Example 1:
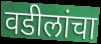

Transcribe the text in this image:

वडीलांचा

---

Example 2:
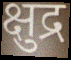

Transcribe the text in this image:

क्षुद्र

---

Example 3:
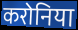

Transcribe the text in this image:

करोनिया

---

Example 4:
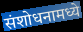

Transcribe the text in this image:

संशोधनामध्ये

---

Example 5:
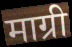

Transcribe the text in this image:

माग्री